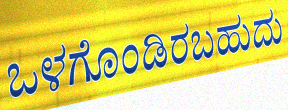
ಒಳಗೊಂಡಿರಬಹುದು